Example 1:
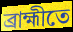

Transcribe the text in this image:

ব্রাহ্মীতে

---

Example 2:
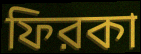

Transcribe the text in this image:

ফিরকা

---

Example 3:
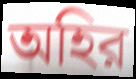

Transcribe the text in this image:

অহির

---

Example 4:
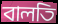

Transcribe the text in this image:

বালতি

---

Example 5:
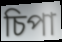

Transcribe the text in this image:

চিপা